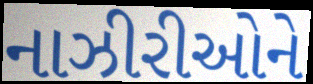
નાઝીરીઓને